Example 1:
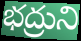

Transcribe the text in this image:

భద్రుని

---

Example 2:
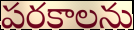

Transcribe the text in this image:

పరకాలను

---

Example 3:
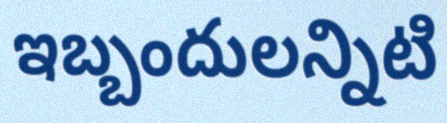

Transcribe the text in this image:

ఇబ్బందులన్నిటి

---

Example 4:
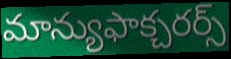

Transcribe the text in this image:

మాన్యుఫాక్చరర్స్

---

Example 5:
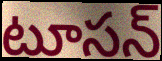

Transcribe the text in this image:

టూసన్